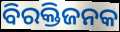
ବିରକ୍ତିଜନକ